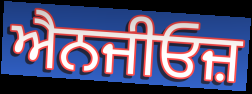
ਐਨਜੀਓਜ਼